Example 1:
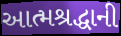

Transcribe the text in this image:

આત્મશ્રદ્ધાની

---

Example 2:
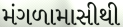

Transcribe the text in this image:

મંગળામાસીથી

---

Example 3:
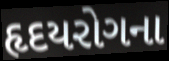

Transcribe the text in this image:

હૃદયરોગના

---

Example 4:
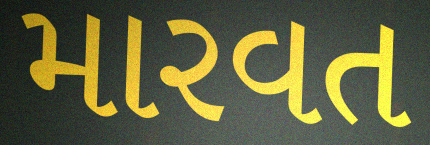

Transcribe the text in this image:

મારવત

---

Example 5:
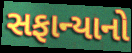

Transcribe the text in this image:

સફાન્યાનો